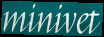
minivet